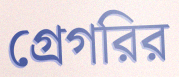
গ্রেগরির